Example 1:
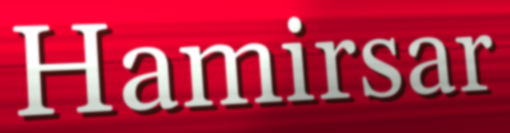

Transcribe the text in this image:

Hamirsar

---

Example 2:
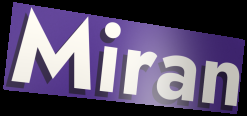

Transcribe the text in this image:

Miran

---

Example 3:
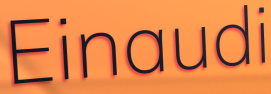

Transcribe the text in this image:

Einaudi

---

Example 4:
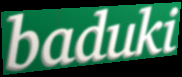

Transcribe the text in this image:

baduki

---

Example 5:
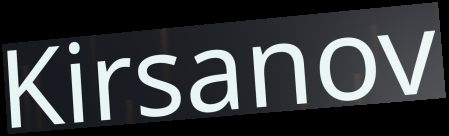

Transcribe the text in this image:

Kirsanov